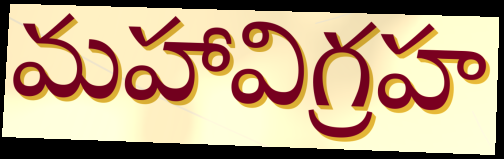
మహావిగ్రహ